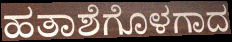
ಹತಾಶೆಗೊಳಗಾದ